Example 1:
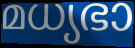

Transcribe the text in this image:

മധ്യഭാ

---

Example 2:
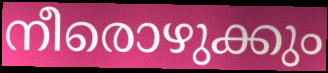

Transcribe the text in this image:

നീരൊഴുക്കും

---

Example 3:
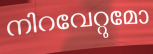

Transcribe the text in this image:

നിറവേറ്റുമോ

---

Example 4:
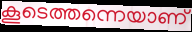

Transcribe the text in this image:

കൂടെത്തന്നെയാണ്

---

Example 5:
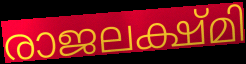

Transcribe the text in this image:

രാജലക്ഷ്മി